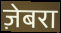
ज़ेबरा